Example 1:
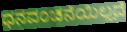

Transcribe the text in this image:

ಧನವಂಚನೆಯಿಲ್ಲದೆ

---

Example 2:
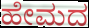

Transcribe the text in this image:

ಹೇಮದ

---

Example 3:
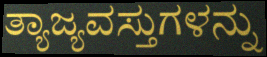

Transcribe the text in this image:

ತ್ಯಾಜ್ಯವಸ್ತುಗಳನ್ನು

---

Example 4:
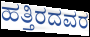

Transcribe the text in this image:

ಹತ್ತಿರದವರ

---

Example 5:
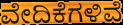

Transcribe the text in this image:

ವೇದಿಕೆಗಳಿವೆ